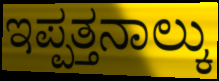
ಇಪ್ಪತ್ತನಾಲ್ಕು